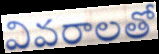
వివరాలతో